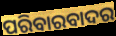
ପରିବାରବାଦର